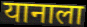
यानाला